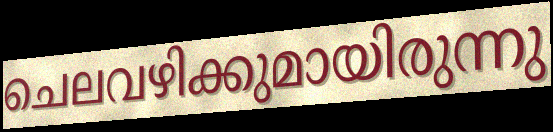
ചെലവഴിക്കുമായിരുന്നു